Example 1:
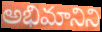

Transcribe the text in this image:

అభిమానిని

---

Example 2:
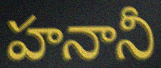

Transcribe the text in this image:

హనానీ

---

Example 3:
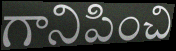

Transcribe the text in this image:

గానిపించి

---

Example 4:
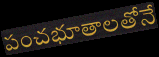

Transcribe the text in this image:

పంచభూతాలతోనే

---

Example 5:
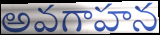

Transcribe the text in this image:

అవగాహన